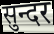
सुन्‍दर